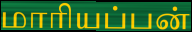
மாரியப்பன்